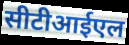
सीटीआईएल